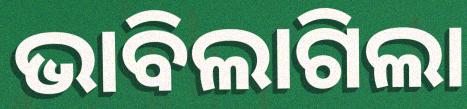
ଭାବିଲାଗିଲା